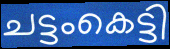
ചട്ടംകെട്ടി